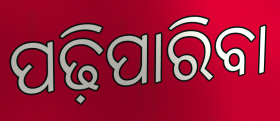
ପଢ଼ିପାରିବା